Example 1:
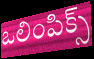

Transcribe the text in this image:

ఒలింపిక్స్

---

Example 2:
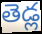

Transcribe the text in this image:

తెడ్ల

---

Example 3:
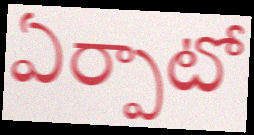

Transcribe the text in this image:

ఏర్పాటో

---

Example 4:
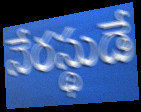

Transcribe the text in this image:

నేరస్థుడే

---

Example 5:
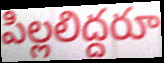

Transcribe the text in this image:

పిల్లలిద్దరూ